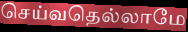
செய்வதெல்லாமே